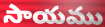
సాయము